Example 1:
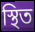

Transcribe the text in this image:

স্থিত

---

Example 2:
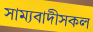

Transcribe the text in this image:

সাম্যবাদীসকল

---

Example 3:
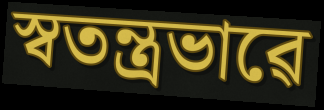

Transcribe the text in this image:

স্বতন্ত্ৰভাৱে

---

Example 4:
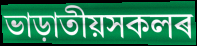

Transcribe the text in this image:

ভাড়াতীয়সকলৰ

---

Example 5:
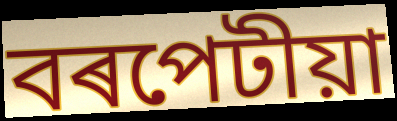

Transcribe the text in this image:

বৰপেটীয়া